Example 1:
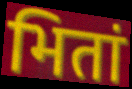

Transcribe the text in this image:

भितां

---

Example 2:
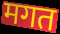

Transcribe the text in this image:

मगत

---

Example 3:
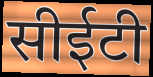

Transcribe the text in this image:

सीईटी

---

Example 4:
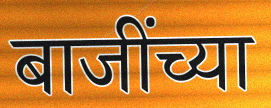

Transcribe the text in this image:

बाजींच्या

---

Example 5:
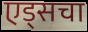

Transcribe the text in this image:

एड्सचा